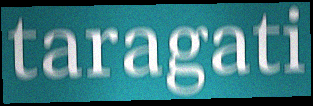
taragati